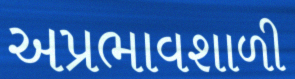
અપ્રભાવશાળી